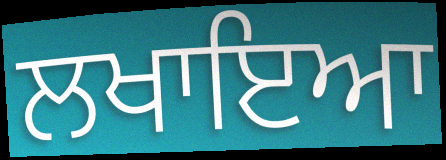
ਲਖਾਇਆ